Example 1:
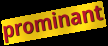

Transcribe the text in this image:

prominant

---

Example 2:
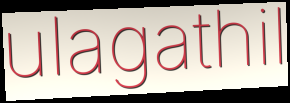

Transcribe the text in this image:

ulagathil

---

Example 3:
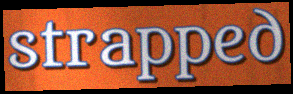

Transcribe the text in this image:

strapped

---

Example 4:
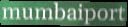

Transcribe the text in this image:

mumbaiport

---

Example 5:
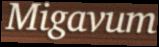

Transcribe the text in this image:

Migavum